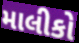
માલીકો